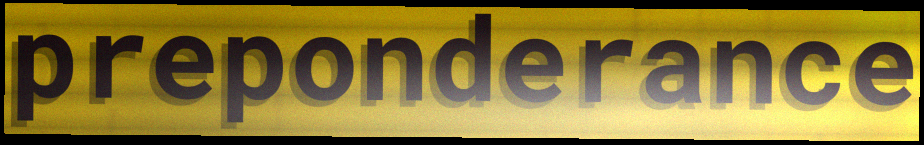
preponderance